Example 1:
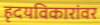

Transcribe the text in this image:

हृदयविकारांवर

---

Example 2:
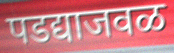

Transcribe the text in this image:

पडद्याजवळ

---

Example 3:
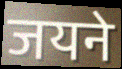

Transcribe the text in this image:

जयने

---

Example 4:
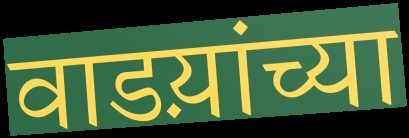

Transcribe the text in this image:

वाडय़ांच्या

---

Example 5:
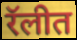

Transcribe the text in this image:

रॅलीत